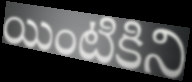
యింటికిని